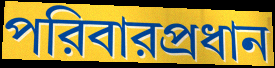
পরিবারপ্রধান